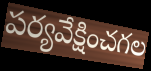
పర్యవేక్షించగల